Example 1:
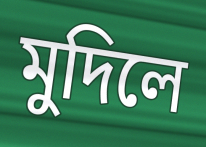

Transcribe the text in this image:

মুদিলে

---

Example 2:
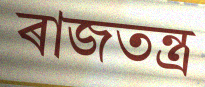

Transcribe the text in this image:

ৰাজতন্ত্ৰ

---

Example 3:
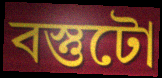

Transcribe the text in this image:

বস্তুটো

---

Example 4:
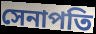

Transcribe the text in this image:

সেনাপতি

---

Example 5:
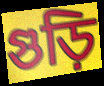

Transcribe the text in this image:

গুড়ি